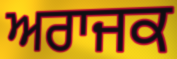
ਅਰਾਜਕ